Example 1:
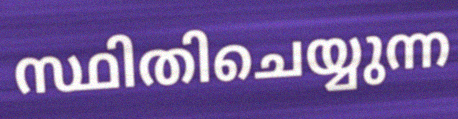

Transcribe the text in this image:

സ്ഥിതിചെയ്യുന്ന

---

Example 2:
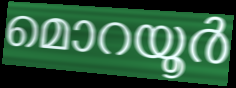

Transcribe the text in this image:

മൊറയൂർ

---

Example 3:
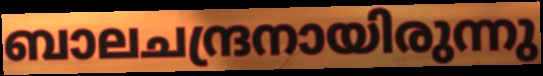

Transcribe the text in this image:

ബാലചന്ദ്രനായിരുന്നു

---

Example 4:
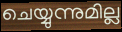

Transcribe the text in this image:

ചെയ്യുന്നുമില്ല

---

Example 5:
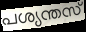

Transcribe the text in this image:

പശ്യന്തസ്